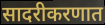
सादरीकरणात